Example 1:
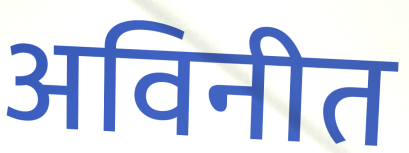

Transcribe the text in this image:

अविनीत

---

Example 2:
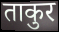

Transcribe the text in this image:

ताकुर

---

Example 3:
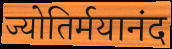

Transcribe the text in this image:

ज्योतिर्मयानंद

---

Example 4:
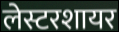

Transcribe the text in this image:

लेस्टरशायर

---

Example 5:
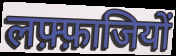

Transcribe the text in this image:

लफ़्फ़ाजियों